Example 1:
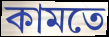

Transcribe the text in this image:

কামতে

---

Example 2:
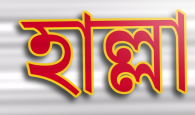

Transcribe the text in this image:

হাল্লা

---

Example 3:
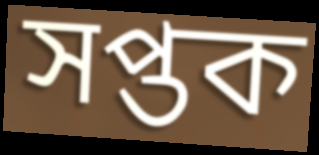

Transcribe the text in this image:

সপ্তক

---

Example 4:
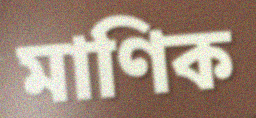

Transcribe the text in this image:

মাণিক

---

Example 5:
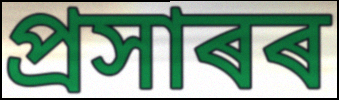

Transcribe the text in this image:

প্ৰসাৰৰ